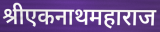
श्रीएकनाथमहाराज